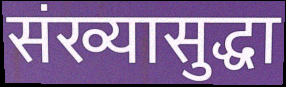
संख्यासुद्धा